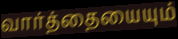
வார்த்தையையும்